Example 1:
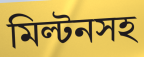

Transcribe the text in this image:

মিল্টনসহ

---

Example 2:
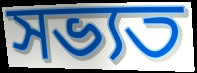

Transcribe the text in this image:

সভ্যত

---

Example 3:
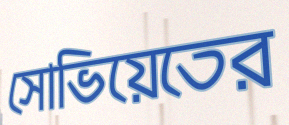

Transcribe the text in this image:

সোভিয়েতের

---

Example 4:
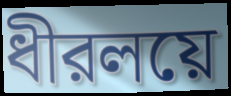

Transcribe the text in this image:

ধীরলয়ে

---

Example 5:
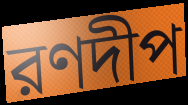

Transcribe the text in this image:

রণদীপ